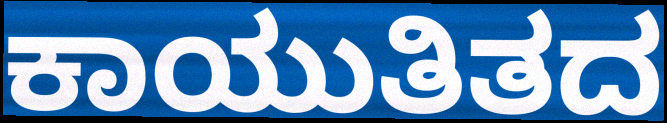
ಕಾಯುತಿತದ